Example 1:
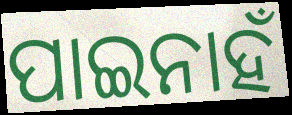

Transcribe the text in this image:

ପାଇନାହଁ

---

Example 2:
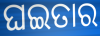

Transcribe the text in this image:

ଘଇତାର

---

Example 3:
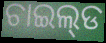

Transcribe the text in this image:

ଚାଇଲ୍‌ଡ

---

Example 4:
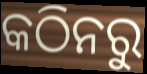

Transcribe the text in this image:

କଠିନରୁ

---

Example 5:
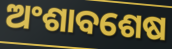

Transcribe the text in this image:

ଅଂଶାବଶେଷ